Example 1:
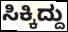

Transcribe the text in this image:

ಸಿಕ್ಕಿದ್ದು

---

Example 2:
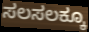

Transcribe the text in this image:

ಸಲಸಲಕ್ಕೂ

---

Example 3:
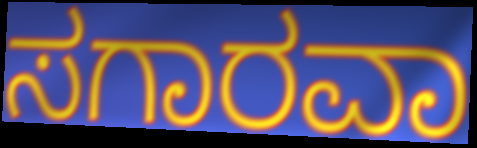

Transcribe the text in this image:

ಸಗಾರವಾ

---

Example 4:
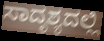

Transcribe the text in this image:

ಸಾದೃಶ್ಯದಲ್ಲಿ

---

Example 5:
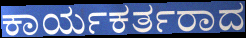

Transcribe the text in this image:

ಕಾರ್ಯಕರ್ತರಾದ